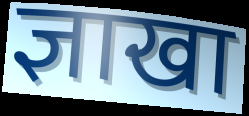
ज्ञाखा